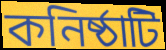
কনিষ্ঠাটি